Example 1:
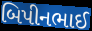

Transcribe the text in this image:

બિપીનભાઈ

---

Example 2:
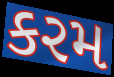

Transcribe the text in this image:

કરમ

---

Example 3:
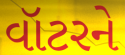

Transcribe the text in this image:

વૉટરને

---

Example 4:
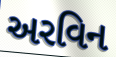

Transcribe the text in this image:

અરવિન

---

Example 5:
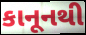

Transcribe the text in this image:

કાનૂનથી